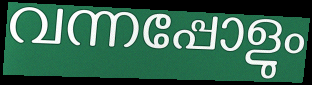
വന്നപ്പോളും